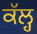
ਕੱਲ੍ਹ